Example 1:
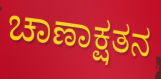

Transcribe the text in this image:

ಚಾಣಾಕ್ಷತನ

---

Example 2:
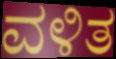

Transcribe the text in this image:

ವಳಿತ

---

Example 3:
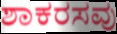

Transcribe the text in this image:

ಶಾಕರಸವು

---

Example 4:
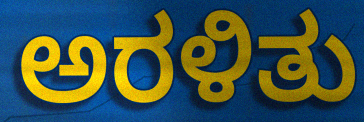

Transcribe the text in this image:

ಅರಳಿತು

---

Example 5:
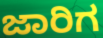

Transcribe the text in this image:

ಜಾರಿಗ